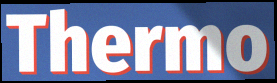
Thermo